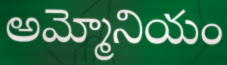
అమ్మోనియం